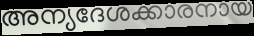
അന്യദേശക്കാരനായ